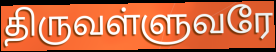
திருவள்ளுவரே